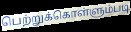
பெற்றுக்கொள்ளும்படி